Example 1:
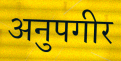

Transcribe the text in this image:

अनुपगीर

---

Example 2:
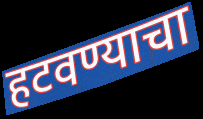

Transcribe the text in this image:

हटवण्याचा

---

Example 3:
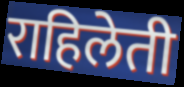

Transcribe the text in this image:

राहिलेती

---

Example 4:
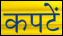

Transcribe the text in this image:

कपटें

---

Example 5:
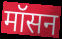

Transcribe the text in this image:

मॉसन